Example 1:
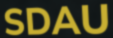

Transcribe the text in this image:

SDAU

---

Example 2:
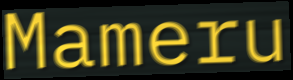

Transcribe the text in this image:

Mameru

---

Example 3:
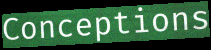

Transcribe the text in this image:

Conceptions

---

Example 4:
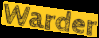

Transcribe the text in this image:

Warder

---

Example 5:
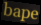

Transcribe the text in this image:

bape